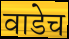
वाडेच